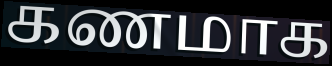
கணமாக